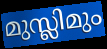
മുസ്ലിമും